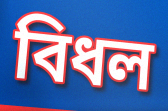
বিধল